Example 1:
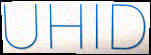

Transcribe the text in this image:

UHID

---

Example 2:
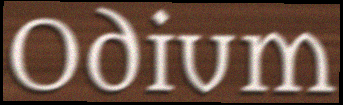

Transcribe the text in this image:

Odium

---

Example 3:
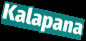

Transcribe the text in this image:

Kalapana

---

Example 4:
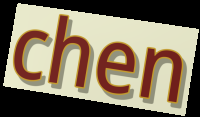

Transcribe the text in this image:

chen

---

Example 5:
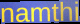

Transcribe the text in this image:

namthi